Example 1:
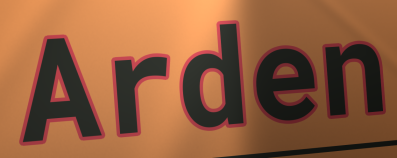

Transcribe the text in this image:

Arden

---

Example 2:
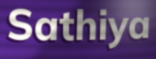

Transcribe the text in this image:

Sathiya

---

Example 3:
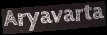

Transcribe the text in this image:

Aryavarta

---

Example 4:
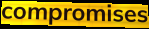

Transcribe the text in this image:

compromises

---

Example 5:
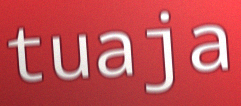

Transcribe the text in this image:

tuaja